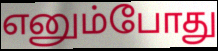
எனும்போது